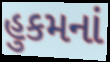
હુકમનાં